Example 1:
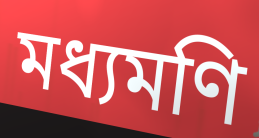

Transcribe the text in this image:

মধ্যমণি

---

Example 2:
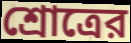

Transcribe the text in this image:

শ্রোত্রের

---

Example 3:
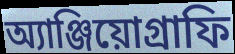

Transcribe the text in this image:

অ্যাঞ্জিয়োগ্রাফি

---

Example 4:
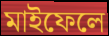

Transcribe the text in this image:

মাইফেলে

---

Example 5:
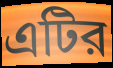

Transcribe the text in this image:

এটির